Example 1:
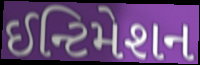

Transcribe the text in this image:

ઈન્ટિમેશન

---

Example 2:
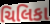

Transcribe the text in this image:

ચિલિકા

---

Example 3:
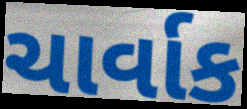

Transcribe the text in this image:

ચાર્વાક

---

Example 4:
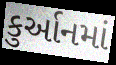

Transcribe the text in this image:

કુર્આનમાં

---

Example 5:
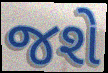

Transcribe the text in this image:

જશે